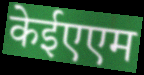
केईएएम